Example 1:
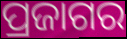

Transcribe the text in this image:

ପ୍ରଜାଗର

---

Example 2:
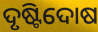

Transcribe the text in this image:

ଦୃଷ୍ଟିଦୋଷ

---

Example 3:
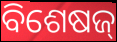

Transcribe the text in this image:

ବିଶେଷଜ୍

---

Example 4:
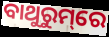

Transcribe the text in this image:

ବାଥୁରୁମ୍‌ରେ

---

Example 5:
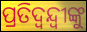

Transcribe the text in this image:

ପ୍ରତିଦ୍ଵନ୍ଦ୍ୱୀଙ୍କୁ